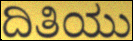
ದಿತಿಯು